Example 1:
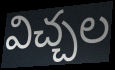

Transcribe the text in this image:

విచ్చల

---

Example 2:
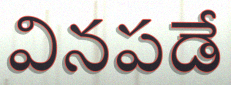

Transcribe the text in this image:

వినపడే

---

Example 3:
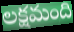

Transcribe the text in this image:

లక్షమంది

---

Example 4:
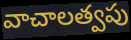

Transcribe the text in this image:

వాచాలత్వపు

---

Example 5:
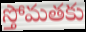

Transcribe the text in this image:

స్తోమతకు